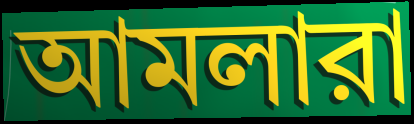
আমলারা